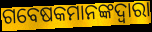
ଗବେଷକମାନଙ୍କଦ୍ୱାରା